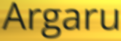
Argaru